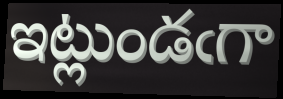
ఇట్లుండఁగా